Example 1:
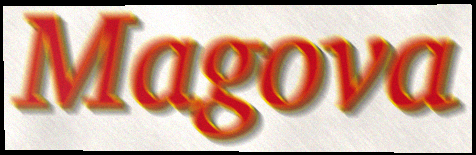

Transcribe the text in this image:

Magova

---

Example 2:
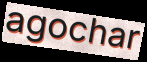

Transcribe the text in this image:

agochar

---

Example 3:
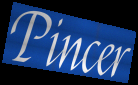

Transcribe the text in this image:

Pincer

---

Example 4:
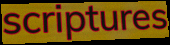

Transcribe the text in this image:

scriptures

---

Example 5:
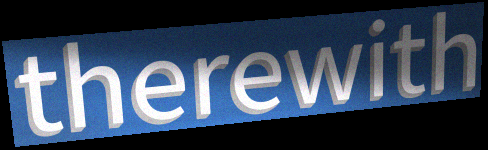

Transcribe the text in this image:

therewith